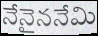
నేనైననేమి